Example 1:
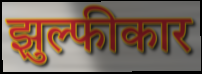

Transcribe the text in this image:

झुल्फीकार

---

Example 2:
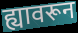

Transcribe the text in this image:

ह्यावरून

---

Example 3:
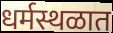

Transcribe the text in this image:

धर्मस्थळात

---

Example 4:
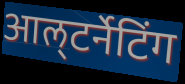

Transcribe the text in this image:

आल्टर्नेटिंग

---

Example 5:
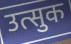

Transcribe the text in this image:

उत्सुक